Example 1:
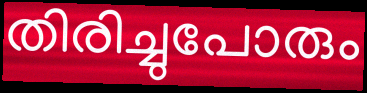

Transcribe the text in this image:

തിരിച്ചുപോരും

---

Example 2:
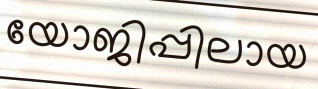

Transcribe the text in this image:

യോജിപ്പിലായ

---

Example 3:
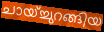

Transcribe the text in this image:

ചായ്ച്ചുറങ്ങിയ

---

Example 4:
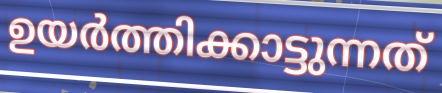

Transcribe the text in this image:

ഉയർത്തിക്കാട്ടുന്നത്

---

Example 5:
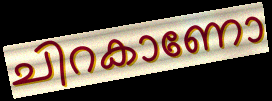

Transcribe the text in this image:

ചിറകാണോ